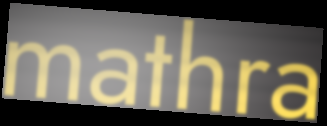
mathra